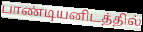
பாண்டியனிடத்தில்